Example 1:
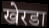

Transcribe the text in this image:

खेरडा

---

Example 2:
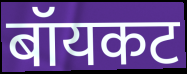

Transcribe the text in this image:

बॉयकट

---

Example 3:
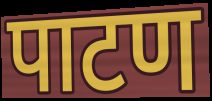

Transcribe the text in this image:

पाटण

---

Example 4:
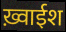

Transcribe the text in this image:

ख़्वाईश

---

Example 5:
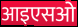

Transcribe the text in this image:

आइएसओ